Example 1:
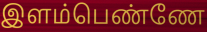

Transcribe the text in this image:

இளம்பெண்ணே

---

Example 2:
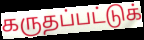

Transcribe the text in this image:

கருதப்பட்டுக்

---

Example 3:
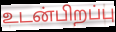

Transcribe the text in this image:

உடன்பிறப்பு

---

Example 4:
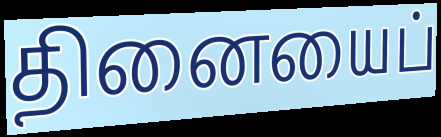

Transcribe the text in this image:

தினையைப்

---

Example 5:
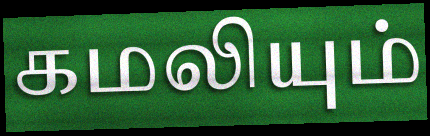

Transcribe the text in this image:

கமலியும்